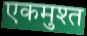
एकमुश्‍त